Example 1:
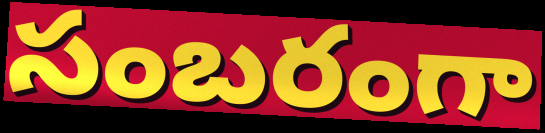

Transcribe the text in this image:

సంబరంగా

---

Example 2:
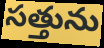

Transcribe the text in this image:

సత్తును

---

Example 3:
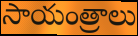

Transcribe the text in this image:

సాయంత్రాలు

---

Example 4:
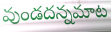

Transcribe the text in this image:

వుండదన్నమాట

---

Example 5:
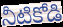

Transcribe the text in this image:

నీటికోడి